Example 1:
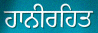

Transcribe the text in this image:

ਹਾਨੀਰਹਿਤ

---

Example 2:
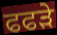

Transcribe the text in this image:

ਫਫਡ਼ੇ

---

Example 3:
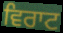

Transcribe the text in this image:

ਵਿਰਾਟ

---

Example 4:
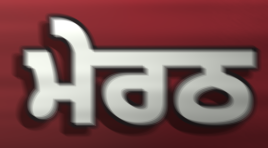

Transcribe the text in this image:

ਮੇਰਠ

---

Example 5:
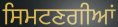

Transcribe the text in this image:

ਸਿਮਟਣਗੀਆਂ